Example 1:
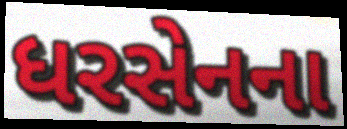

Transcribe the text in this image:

ધરસેનના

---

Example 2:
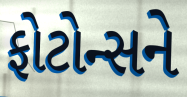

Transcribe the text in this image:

ફોટોન્સને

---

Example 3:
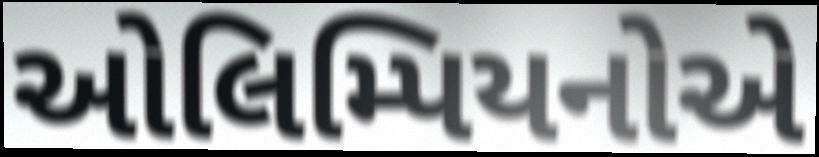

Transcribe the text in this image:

ઓલિમ્પિયનોએ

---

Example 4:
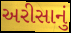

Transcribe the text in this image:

અરીસાનું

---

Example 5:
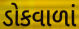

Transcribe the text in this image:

ડોકવાળાં